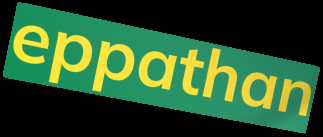
eppathan